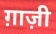
ग़ाज़ी